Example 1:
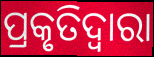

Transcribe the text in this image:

ପ୍ରକୃତିଦ୍ୱାରା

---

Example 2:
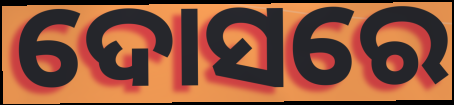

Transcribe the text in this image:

ଦୋସରେ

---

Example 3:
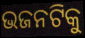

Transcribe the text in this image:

ଭଜନଟିକୁ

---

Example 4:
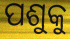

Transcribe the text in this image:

ପଶୁକୁ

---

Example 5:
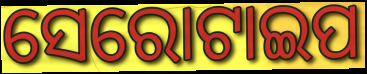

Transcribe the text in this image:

ସେରୋଟାଇପ